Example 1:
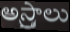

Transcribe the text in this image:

అస్ర్తాలు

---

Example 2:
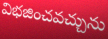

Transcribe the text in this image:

విభజించవచ్చును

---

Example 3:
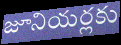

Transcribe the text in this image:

జూనియర్లకు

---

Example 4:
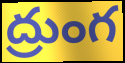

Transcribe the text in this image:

ద్రుంగ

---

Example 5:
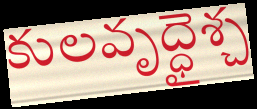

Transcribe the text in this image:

కులవృద్ధైశ్చ